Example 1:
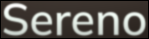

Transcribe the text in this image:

Sereno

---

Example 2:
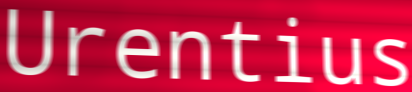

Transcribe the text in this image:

Urentius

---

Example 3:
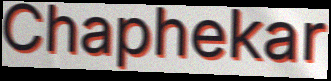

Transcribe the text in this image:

Chaphekar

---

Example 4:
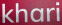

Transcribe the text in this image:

khari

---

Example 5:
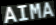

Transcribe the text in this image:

AIMA